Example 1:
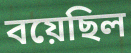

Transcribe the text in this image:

বয়েছিল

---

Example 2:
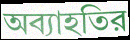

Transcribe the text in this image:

অব্যাহতির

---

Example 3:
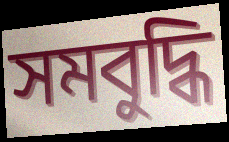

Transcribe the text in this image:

সমবুদ্ধি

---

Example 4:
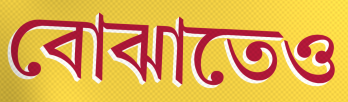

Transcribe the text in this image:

বোঝাতেও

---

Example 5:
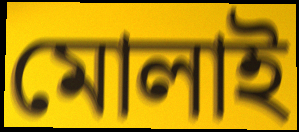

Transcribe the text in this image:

মোলাই